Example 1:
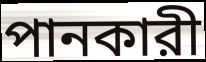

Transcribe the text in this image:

পানকারী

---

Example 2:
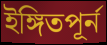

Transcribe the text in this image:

ইঙ্গিতপূর্ন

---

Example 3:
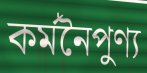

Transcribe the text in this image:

কর্মনৈপুণ্য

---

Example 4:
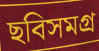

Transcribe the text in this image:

ছবিসমগ্র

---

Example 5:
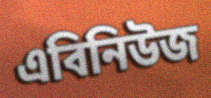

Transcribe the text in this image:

এবিনিউজ